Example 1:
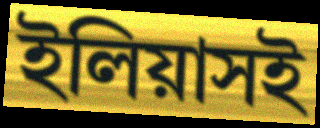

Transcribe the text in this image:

ইলিয়াসই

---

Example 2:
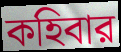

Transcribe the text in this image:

কহিবার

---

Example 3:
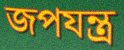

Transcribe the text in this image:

জপযন্ত্র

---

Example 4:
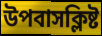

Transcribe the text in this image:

উপবাসক্লিষ্ট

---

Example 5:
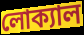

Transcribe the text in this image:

লোক্যাল